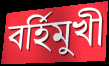
বর্হিমুখী